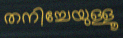
തനിച്ചേയുള്ളൂ